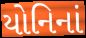
યોનિનાં